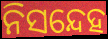
ନିସନ୍ଦେହ